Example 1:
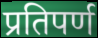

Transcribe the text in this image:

प्रतिपर्ण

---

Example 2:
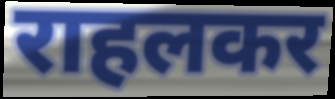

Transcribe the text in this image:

राहलकर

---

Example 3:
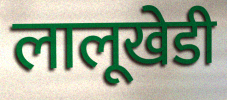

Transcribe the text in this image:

लालूखेडी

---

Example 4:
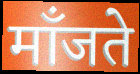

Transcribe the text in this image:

माँजते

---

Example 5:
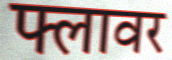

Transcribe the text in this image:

फ्लावर